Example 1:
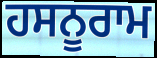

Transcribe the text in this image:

ਹਸਨੂਰਾਮ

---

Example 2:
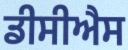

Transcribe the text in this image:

ਡੀਸੀਐਸ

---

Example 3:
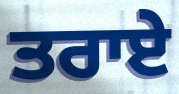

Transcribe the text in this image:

ਤਰਾਏ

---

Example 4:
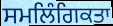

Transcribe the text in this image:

ਸਮਲਿੰਗਿਕਤਾ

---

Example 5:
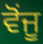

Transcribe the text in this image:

ਵੋਂਜੂ